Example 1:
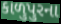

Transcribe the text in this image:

કાળુપુરના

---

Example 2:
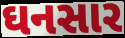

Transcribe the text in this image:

ઘનસાર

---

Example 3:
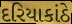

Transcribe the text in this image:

દરિયાકાંઠે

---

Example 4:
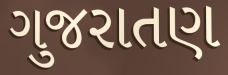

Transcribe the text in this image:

ગુજરાતણ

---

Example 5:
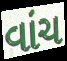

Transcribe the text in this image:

વાંચ